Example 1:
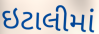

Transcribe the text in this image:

ઇટાલીમાં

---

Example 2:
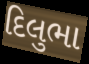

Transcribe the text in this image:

દિલુભા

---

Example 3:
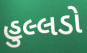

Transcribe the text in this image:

હુલ્લડો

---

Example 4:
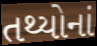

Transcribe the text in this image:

તથ્યોનાં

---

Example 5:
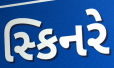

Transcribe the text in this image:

સ્કિનરે